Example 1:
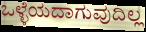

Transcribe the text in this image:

ಒಳ್ಳೆಯದಾಗುವುದಿಲ್ಲ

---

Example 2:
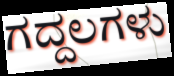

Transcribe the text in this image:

ಗದ್ದಲಗಳು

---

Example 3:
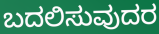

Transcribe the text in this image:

ಬದಲಿಸುವುದರ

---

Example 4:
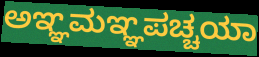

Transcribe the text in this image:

ಅಞ್ಞಮಞ್ಞಪಚ್ಚಯಾ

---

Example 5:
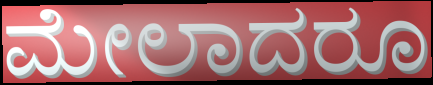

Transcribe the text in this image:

ಮೇಲಾದರೂ